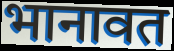
भानावत